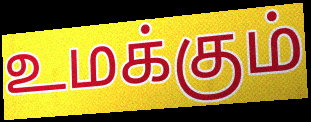
உமக்கும்